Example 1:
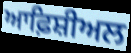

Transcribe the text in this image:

ਆਫ਼ਿਸ਼ੀਅਲ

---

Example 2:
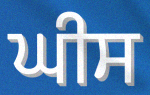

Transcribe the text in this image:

ਘੀਸ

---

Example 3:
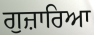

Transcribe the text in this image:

ਗੁਜ਼ਾਰਿਆ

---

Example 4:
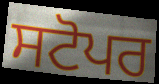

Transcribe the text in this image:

ਸਟੋਪਰ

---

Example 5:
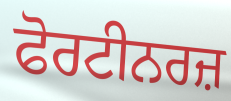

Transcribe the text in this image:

ਫੋਰਟੀਨਰਜ਼